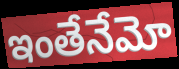
ఇంతేనేమో